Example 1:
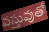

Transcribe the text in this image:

వస్తువుతో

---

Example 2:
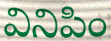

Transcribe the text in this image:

వినిపిం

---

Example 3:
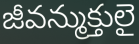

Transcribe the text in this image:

జీవన్ముక్తులై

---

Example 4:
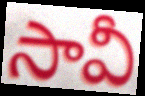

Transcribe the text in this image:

సావీ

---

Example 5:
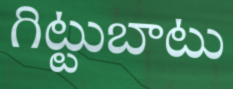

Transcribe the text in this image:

గిట్టుబాటు